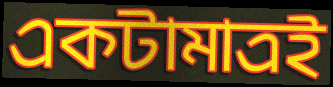
একটামাত্রই